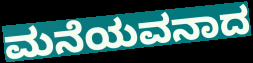
ಮನೆಯವನಾದ